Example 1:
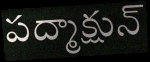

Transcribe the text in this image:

పద్మాక్షున్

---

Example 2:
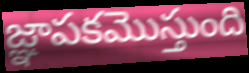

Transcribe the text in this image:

జ్ఞాపకమొస్తుంది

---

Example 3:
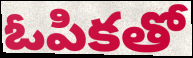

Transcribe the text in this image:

ఓపికతో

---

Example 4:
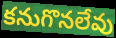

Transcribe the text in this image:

కనుగొనలేవు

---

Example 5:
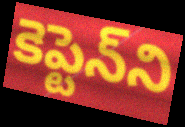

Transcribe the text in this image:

కెప్టెన్‌ని